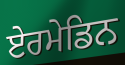
ਏਰਮੇਡਿਨ